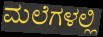
ಮಲೆಗಳಲ್ಲಿ